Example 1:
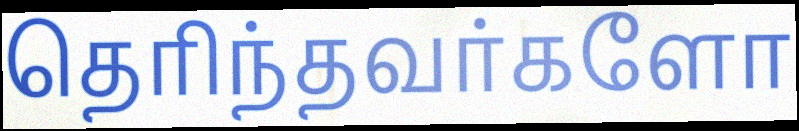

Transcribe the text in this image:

தெரிந்தவர்களோ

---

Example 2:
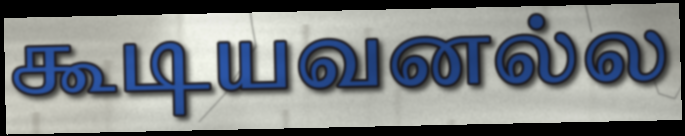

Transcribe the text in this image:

கூடியவனல்ல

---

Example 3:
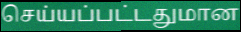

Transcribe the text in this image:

செய்யப்பட்டதுமான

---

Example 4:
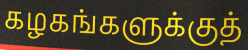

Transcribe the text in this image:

கழகங்களுக்குத்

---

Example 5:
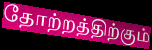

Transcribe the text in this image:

தோற்றத்திற்கும்